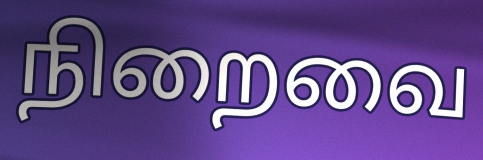
நிறைவை